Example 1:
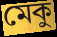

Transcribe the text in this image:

মেকু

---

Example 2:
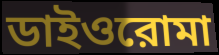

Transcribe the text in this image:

ডাইওরোমা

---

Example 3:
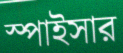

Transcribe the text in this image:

স্পাইসার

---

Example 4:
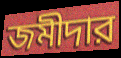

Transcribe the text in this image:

জমীদার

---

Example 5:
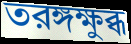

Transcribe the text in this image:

তরঙ্গক্ষুব্ধ